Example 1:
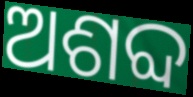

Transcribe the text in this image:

ଅଶବ୍ଦ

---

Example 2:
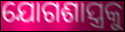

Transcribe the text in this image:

ଯୋଗଶାସ୍ତ୍ରକୁ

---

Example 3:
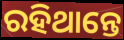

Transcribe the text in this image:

ରହିଥାନ୍ତେ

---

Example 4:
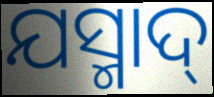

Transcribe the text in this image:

ଯସ୍ମାଦ୍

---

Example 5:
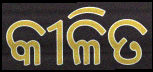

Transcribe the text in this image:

କୀଳିତ